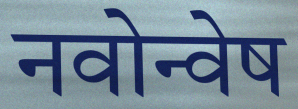
नवोन्वेष